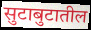
सुटाबुटातील